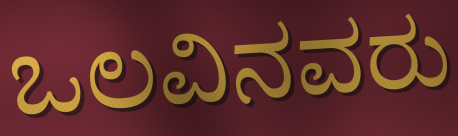
ಒಲವಿನವರು